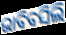
ଭାବିବସିଲି